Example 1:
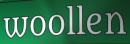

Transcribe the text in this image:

woollen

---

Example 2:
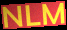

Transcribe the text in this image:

NLM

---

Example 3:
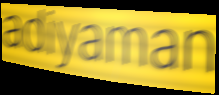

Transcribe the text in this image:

adiyaman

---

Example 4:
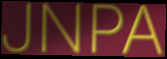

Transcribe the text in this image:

JNPA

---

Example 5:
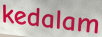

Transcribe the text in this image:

kedalam